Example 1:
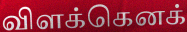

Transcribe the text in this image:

விளக்கெனக்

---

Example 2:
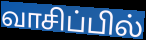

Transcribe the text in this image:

வாசிப்பில்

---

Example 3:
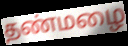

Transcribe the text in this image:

தண்மழை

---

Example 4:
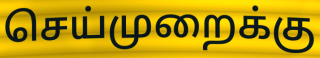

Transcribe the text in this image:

செய்முறைக்கு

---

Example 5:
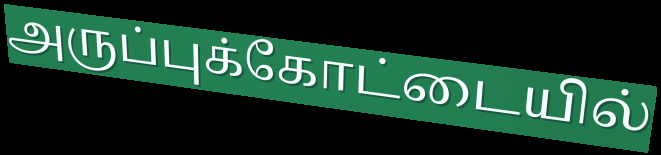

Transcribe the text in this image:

அருப்புக்கோட்டையில்